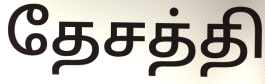
தேசத்தி